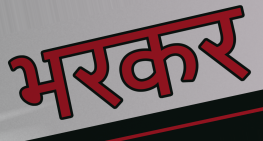
भरकर